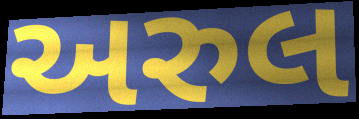
અરુલ